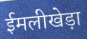
ईमलीखेड़ा